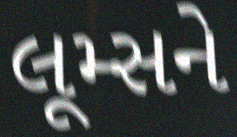
લૂમ્સને